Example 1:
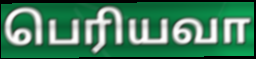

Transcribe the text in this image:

பெரியவா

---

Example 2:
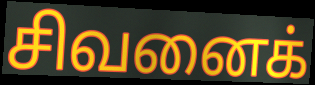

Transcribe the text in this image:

சிவனைக்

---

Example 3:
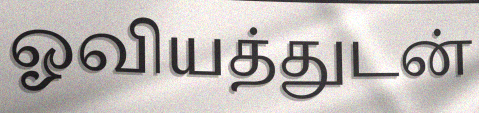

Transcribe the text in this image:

ஓவியத்துடன்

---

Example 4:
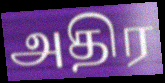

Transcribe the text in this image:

அதிர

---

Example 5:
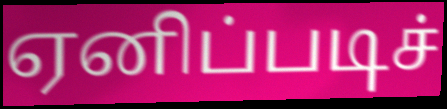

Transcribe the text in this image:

ஏனிப்படிச்